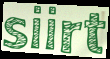
siirt